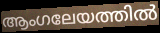
ആംഗലേയത്തിൽ